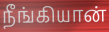
நீங்கியான்